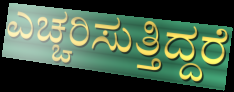
ಎಚ್ಚರಿಸುತ್ತಿದ್ದರೆ